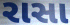
રાસા